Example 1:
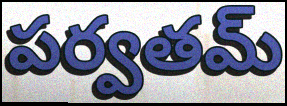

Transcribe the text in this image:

పర్వతమ్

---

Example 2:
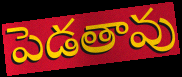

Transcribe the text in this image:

పెడతావు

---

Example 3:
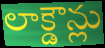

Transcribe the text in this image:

లాక్డౌన్లు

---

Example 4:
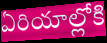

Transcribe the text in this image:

ఏరియాల్లోకి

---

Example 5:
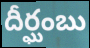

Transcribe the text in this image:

దీర్ఘంబు